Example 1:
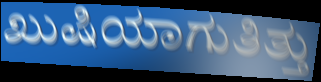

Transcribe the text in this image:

ಖುಷಿಯಾಗುತಿತ್ತು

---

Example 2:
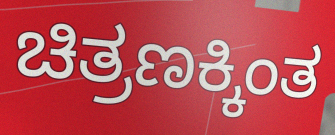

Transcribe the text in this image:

ಚಿತ್ರಣಕ್ಕಿಂತ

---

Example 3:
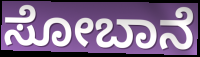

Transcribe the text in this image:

ಸೋಬಾನೆ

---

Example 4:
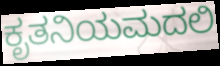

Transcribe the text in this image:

ಕೃತನಿಯಮದಲಿ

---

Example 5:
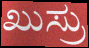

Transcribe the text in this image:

ಖುಸ್ರು